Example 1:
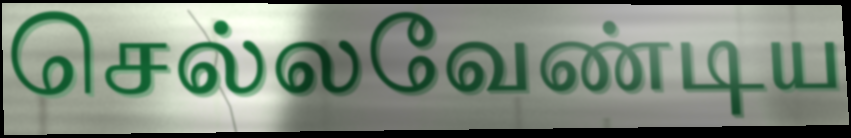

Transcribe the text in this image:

செல்லவேண்டிய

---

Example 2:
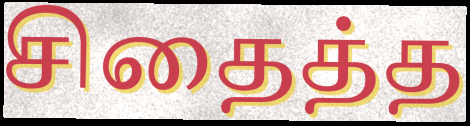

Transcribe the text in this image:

சிதைத்த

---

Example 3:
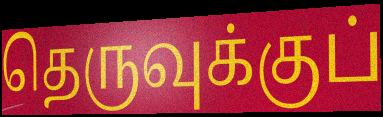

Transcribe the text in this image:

தெருவுக்குப்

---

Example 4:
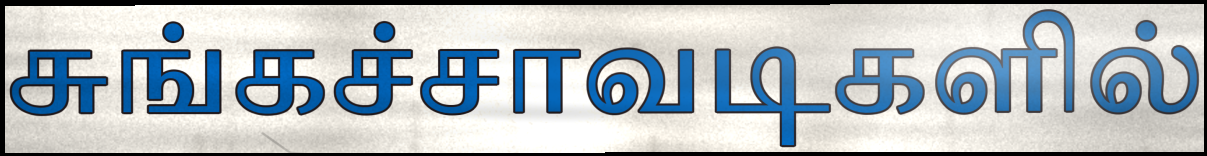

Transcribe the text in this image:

சுங்கச்சாவடிகளில்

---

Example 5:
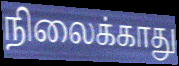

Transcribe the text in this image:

நிலைக்காது